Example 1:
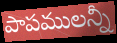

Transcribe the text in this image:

పాపములన్నీ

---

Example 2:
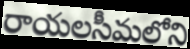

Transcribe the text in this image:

రాయలసీమలోని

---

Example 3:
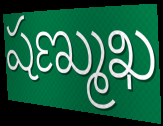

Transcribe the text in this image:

షణ్ముఖ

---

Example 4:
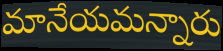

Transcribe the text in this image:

మానేయమన్నారు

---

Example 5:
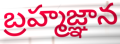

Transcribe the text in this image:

బ్రహ్మజ్ఞాన